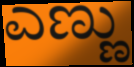
ಎಣ್ಣು